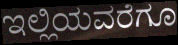
ಇಲ್ಲಿಯವರೆಗೂ